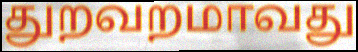
துறவறமாவது